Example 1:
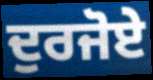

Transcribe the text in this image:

ਦੁਰਜੋਏ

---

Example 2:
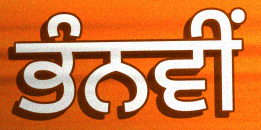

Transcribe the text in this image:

ਭੰਨਵੀਂ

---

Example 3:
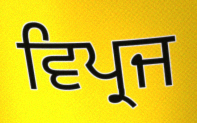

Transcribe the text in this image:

ਵਿਪ੍ਰਜ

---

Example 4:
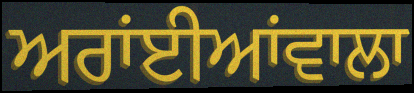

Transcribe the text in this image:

ਅਰਾਂਈਆਂਵਾਲਾ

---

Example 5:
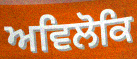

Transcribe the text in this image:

ਅਵਿਲੋਕਿ